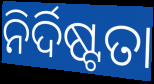
ନିର୍ଦିଷ୍ଟତା